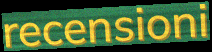
recensioni